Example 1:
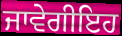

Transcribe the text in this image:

ਜਾਵੇਗੀਇਹ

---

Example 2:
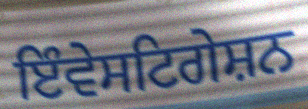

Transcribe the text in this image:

ਇੰਵੇਸਟਿਗੇਸ਼ਨ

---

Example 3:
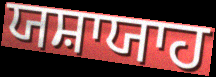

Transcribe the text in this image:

ਯਸ਼ਾਯਾਹ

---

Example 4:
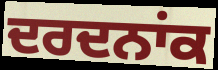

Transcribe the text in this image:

ਦਰਦਨਾਂਕ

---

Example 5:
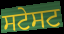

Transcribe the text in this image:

ਸਟੇਸਟ